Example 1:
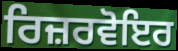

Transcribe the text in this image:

ਰਿਜ਼ਰਵੋਇਰ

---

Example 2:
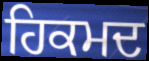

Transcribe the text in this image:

ਹਿਕਮਦ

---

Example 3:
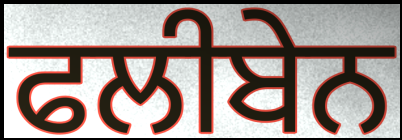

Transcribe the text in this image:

ਫਲੀਬੇਨ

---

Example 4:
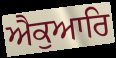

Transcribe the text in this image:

ਐਕੁਆਰਿ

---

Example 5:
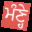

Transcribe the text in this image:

ਮੰਣ੍ਹੇ